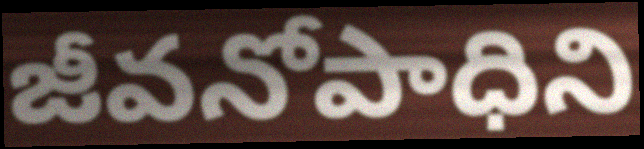
జీవనోపాధిని